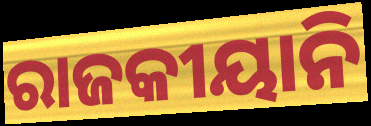
ରାଜକୀୟାନି